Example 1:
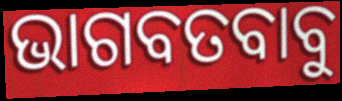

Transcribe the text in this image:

ଭାଗବତବାବୁ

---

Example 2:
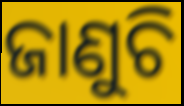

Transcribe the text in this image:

ଜାଣୁଚି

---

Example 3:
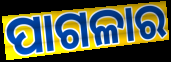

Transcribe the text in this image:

ପାଗଳାର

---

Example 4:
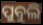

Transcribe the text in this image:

ପୁବୁଲି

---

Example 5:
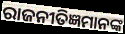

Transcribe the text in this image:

ରାଜନୀତିଜ୍ଞମାନଙ୍କ